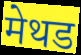
मेथड